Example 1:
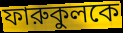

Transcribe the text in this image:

ফারুকুলকে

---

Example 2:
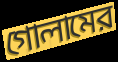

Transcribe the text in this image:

গোলামের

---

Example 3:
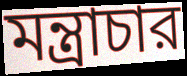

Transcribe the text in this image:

মন্ত্রাচার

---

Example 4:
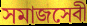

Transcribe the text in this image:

সমাজসেবী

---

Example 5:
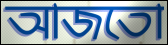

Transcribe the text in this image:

আজতো